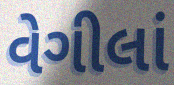
વેગીલાં